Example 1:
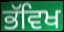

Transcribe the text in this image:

ਭੱਵਿਖ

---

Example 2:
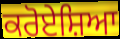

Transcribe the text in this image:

ਕਰੋਏਸ਼ਿਆ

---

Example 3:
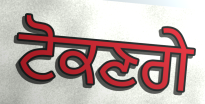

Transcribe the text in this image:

ਟੋਕਣਗੇ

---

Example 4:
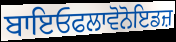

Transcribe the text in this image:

ਬਾਇਓਫਲਾਵੋਨੋਇਡਜ਼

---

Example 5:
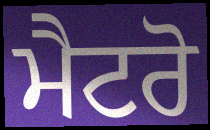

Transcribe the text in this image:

ਮੈਟਰੋ